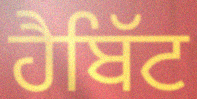
ਹੈਬਿੱਟ